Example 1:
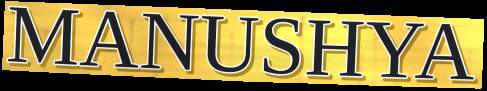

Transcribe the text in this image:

MANUSHYA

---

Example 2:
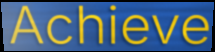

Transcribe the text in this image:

Achieve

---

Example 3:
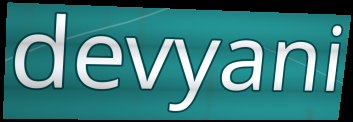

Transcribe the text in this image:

devyani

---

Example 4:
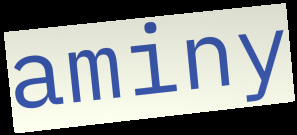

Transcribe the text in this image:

aminy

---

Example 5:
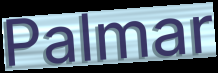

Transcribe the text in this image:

Palmar